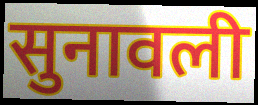
सुनावली